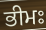
ਭੀਮਃ